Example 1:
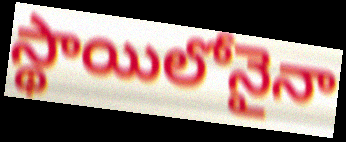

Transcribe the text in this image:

స్థాయిలోనైనా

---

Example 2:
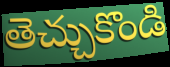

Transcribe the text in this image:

తెచ్చుకొండి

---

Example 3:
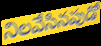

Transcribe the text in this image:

నిలవేసినపుడో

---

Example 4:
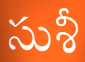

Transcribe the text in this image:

సుశీ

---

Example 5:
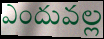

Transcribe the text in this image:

ఎందువల్ల